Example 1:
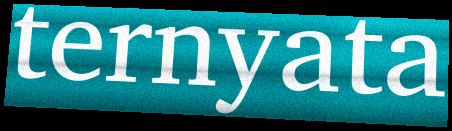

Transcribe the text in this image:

ternyata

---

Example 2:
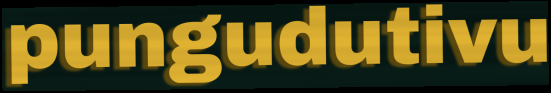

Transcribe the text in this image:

pungudutivu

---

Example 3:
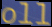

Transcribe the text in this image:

oll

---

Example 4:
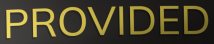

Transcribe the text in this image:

PROVIDED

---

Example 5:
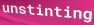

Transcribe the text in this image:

unstinting